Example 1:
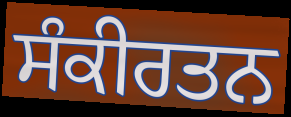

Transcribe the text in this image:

ਸੰਕੀਰਤਨ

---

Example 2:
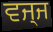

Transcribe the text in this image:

ਵਜ੍ਜ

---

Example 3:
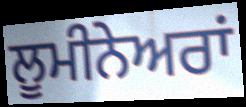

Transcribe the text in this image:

ਲੂਮੀਨੇਅਰਾਂ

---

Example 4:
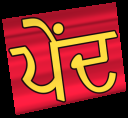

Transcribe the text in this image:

ਪੇਂਦ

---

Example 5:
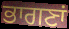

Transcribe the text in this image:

ਭਾਗਣਾਂ